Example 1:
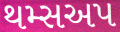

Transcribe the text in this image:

થમ્સઅપ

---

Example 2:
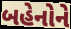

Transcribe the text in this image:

બહેનોને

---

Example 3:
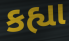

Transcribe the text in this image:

કહ્યા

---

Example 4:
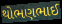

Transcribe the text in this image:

થોભણભાઈ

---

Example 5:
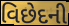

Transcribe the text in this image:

વિછેદની